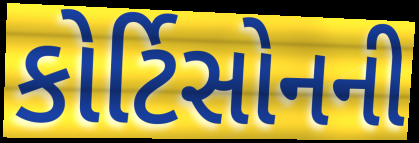
કોર્ટિસોનની